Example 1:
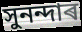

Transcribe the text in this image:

সুনন্দাৰ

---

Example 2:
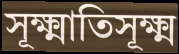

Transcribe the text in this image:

সূক্ষ্মাতিসূক্ষ্ম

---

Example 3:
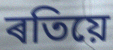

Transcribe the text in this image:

ৰতিয়ে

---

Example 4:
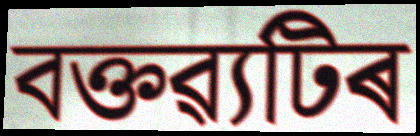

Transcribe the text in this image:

বক্তৱ্যটিৰ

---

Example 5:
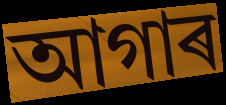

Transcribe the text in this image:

আগাৰ